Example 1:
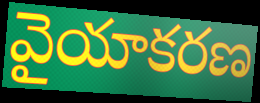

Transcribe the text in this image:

వైయాకరణ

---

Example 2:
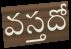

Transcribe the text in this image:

వస్తదో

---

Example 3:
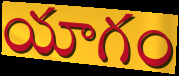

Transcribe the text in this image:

యాగం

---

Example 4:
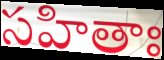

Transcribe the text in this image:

సహితాః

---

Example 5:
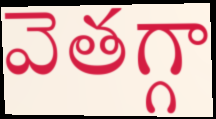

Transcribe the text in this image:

వెతగ్గా